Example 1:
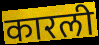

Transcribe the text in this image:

कारली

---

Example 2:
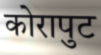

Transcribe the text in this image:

कोरापुट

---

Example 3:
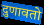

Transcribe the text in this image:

दुणावतो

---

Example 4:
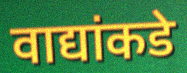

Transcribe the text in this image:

वाद्यांकडे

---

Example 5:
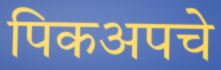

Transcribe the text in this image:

पिकअपचे